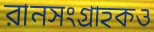
রানসংগ্রাহকও